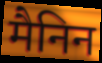
मैनिन